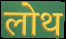
लोथ